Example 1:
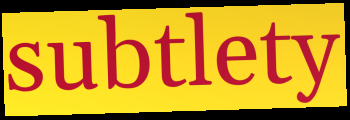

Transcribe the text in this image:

subtlety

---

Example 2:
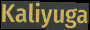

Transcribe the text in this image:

Kaliyuga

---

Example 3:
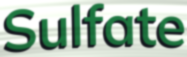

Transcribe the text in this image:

Sulfate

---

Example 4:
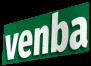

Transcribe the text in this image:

venba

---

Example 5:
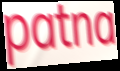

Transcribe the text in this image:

patna